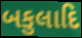
બકુલાદિ